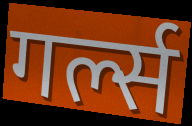
गर्ल्स